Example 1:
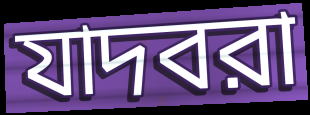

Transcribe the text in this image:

যাদবরা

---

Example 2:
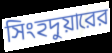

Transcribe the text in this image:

সিংহদুয়ারের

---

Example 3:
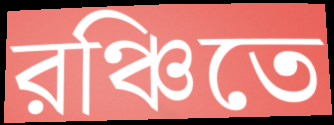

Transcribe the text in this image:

রঞ্চিতে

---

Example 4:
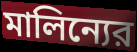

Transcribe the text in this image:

মালিন্যের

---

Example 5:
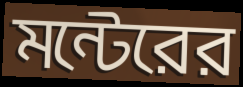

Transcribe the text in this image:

মন্টেরের